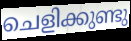
ചെളിക്കുണ്ടു